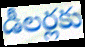
డీలర్లకు